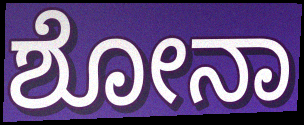
ಶೋನಾ